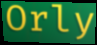
Orly